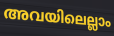
അവയിലെല്ലാം